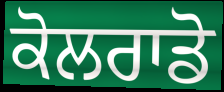
ਕੋਲਰਾਡੋ